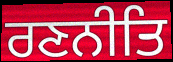
ਰਣਨੀਤਿ